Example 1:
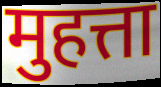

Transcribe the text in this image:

मुहत्ता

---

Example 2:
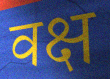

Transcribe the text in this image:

वक्ष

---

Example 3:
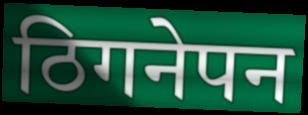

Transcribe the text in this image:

ठिगनेपन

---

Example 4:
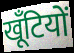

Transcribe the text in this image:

खूँटियों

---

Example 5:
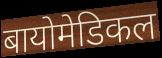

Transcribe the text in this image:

बायोमेडिकल